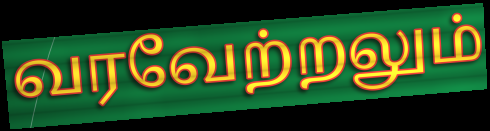
வரவேற்றலும்